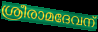
ശ്രീരാമദേവന്